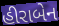
હીરાબેન